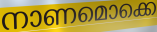
നാണമൊക്കെ